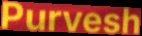
Purvesh